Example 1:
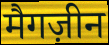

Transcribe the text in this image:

मैगज़ीन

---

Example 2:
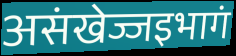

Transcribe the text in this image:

असंखेज्जइभागं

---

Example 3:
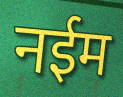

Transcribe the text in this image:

नईम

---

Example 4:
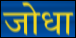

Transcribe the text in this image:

जोधा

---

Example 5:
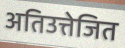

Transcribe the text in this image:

अतिउत्तेजित